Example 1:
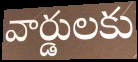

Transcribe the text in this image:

వార్డులకు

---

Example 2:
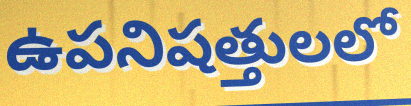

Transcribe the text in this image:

ఉపనిషత్తులలో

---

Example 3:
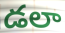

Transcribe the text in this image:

డలా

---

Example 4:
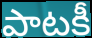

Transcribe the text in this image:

పాటకీ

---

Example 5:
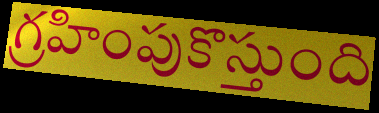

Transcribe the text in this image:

గ్రహింపుకొస్తుంది